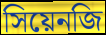
সিয়েনজি